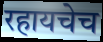
रहायचेच